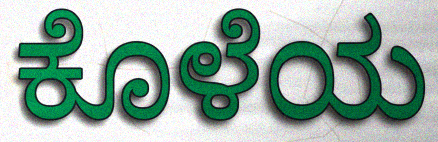
ಕೊಳೆಯ